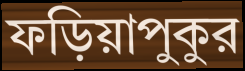
ফড়িয়াপুকুর